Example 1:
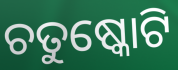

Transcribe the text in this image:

ଚତୁଷ୍କୋଟି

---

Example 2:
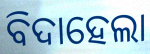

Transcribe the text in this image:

ବିଦାହେଲା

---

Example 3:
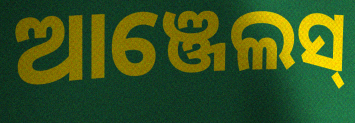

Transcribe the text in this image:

ଆଞ୍ଜେଲସ୍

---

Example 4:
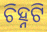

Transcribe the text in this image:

ଚିହ୍ନଟି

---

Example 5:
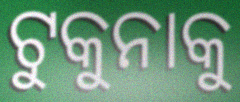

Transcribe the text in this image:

ଟୁକୁନାକୁ